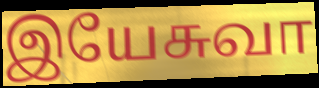
இயேசுவா